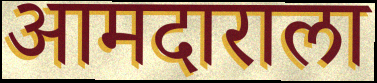
आमदाराला